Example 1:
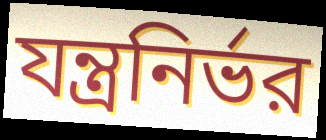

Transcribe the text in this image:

যন্ত্রনির্ভর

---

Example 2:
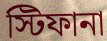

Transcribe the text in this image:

স্টিফানা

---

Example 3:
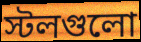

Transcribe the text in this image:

স্টলগুলো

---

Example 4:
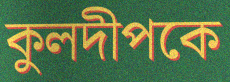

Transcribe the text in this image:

কুলদীপকে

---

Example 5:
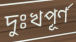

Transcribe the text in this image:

দুঃখপূর্ণ